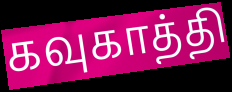
கவுகாத்தி